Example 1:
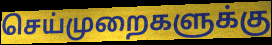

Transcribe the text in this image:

செய்முறைகளுக்கு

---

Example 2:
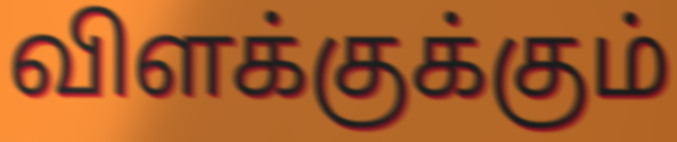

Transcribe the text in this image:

விளக்குக்கும்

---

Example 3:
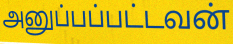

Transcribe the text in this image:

அனுப்பப்பட்டவன்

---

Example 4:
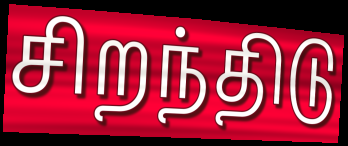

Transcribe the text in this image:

சிறந்திடு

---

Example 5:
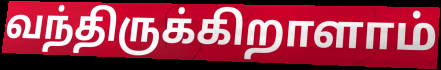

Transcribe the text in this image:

வந்திருக்கிறாளாம்